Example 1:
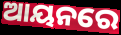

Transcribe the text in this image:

ଆୟନରେ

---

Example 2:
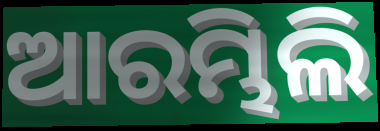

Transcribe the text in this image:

ଆରମ୍ଭିଲି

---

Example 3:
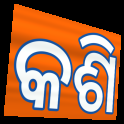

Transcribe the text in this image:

କଶି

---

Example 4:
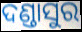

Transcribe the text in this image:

ଦଣ୍ଡାସୁର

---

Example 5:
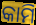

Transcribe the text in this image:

କାମି